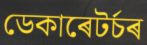
ডেকাৰেটৰ্চৰ